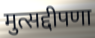
मुत्सद्दीपणा